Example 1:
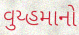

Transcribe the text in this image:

વુય્હમાનો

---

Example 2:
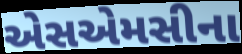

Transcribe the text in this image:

એસએમસીના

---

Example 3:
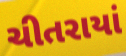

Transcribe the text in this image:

ચીતરાયાં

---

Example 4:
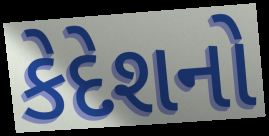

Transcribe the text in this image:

કેદેશનો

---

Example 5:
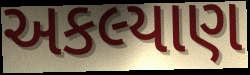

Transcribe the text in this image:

અકલ્યાણ